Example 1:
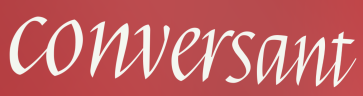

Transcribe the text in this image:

conversant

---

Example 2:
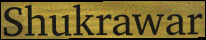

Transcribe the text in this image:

Shukrawar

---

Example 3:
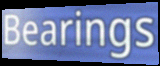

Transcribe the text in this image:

Bearings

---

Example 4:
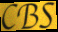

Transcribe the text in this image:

CBS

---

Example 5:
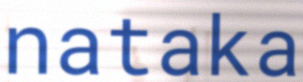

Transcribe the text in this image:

nataka